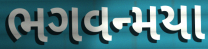
ભગવન્મયા